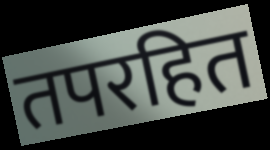
तपरहित